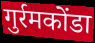
गुर्रमकोंडा